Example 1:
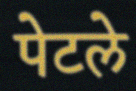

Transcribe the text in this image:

पेटले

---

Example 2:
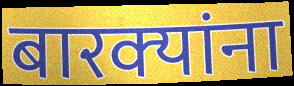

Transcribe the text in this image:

बारक्यांना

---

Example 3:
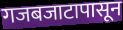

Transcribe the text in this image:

गजबजाटापासून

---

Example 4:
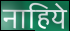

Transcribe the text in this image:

नाहिये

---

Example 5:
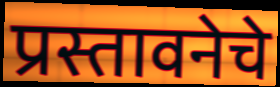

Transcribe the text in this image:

प्रस्तावनेचे